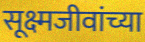
सूक्ष्मजीवांच्या